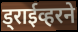
ड्राईव्हरने